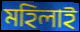
মহিলাই